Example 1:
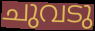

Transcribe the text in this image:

ചുവടു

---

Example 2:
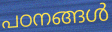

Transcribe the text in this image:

പഠനങ്ങൾ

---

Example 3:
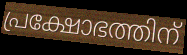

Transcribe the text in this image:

പ്രക്ഷോഭത്തിന്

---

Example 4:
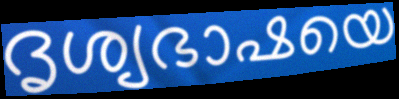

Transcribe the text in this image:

ദൃശ്യഭാഷയെ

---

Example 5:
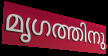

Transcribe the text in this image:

മൃഗത്തിനു